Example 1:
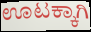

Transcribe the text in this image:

ಊಟಕ್ಕಾಗಿ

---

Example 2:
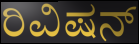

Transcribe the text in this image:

ರಿವಿಷನ್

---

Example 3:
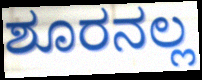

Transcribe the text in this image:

ಶೂರನಲ್ಲ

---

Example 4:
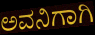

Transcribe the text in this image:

ಅವನಿಗಾಗಿ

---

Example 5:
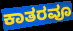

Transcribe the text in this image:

ಕಾತರವೂ